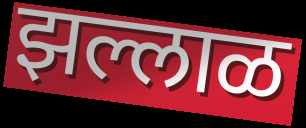
झल्लाळ